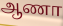
ஆணா